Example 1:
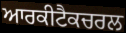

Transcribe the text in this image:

ਆਰਕੀਟੈਕਚਰਲ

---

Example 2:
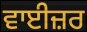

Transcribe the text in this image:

ਵਾਈਜ਼ਰ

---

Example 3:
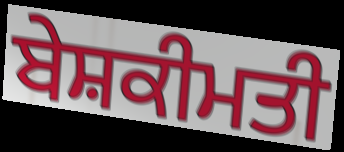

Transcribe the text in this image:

ਬੇਸ਼ਕੀਮਤੀ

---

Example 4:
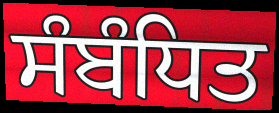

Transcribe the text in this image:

ਸੰਬੰਧਿਤ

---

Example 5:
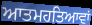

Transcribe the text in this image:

ਆਤਮਹਤਿਆਵਾਂ